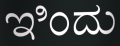
ಇಿಂದು